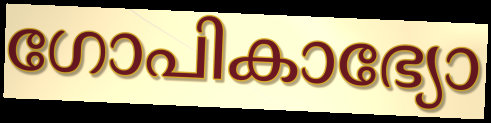
ഗോപികാഭ്യോ